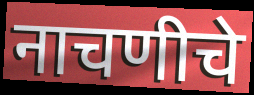
नाचणीचे